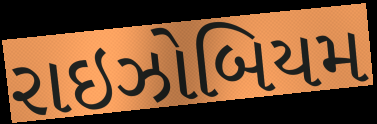
રાઇઝોબિયમ